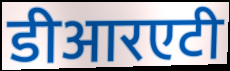
डीआरएटी